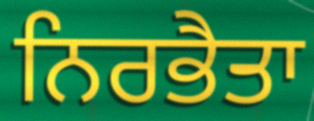
ਨਿਰਭੈਤਾ